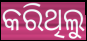
କରିଥିଲୁ